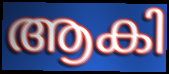
ആകി